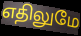
எதிலுமே